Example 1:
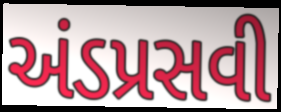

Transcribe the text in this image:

અંડપ્રસવી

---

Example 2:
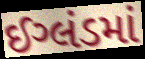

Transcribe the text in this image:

ઈગ્લંડમાં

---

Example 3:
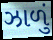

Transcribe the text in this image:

ઝાળું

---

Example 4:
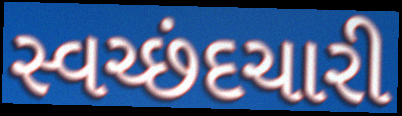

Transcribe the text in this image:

સ્વચ્છંદચારી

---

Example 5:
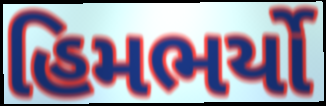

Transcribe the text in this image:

હિમભર્યો